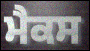
ਮੈਕਸ